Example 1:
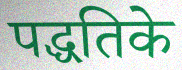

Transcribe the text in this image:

पद्धतिके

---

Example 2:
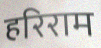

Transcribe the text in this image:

हरिराम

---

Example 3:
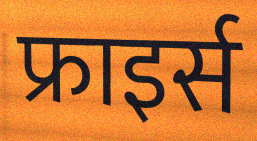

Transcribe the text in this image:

फ्राइर्स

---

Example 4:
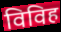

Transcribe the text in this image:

विविह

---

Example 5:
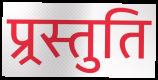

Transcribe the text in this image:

प्र्रस्तुति